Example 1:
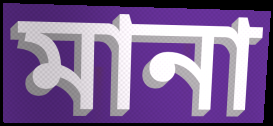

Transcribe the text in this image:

মানা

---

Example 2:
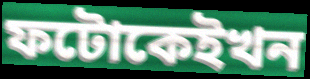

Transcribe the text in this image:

ফটোকেইখন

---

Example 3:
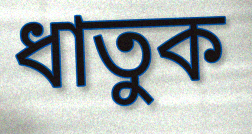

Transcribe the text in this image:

ধাতুক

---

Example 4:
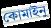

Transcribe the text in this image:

কোমাইনু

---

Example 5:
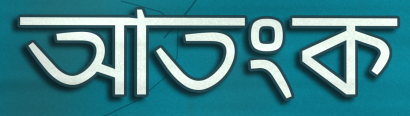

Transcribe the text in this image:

আতংক